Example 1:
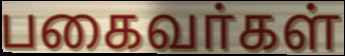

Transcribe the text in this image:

பகைவர்கள்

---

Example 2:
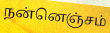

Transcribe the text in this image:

நன்னெஞ்சம்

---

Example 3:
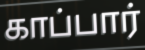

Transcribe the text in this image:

காப்பார்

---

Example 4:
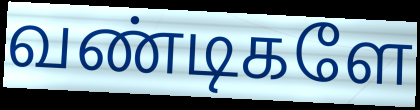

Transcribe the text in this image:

வண்டிகளே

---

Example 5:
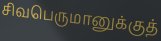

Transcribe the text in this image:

சிவபெருமானுக்குத்